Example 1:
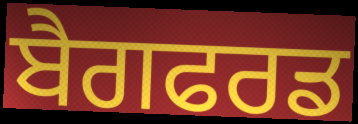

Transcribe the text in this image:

ਬੈਗਫਰਡ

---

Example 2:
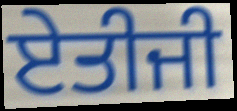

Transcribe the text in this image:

ਏਤੀਜੀ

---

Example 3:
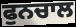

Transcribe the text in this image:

ਫੁਨਚਾਲ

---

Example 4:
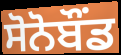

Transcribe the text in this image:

ਸੋਨੋਬੌਂਡ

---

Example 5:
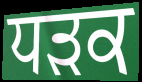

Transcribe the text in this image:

ਧੜਕ